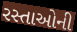
રસ્તાઓની